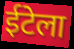
ईटेला